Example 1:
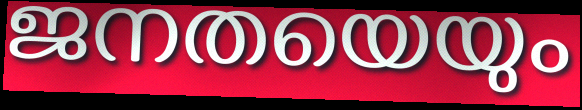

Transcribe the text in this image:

ജനതയെയും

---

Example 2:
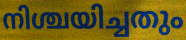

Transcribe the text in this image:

നിശ്ചയിച്ചതും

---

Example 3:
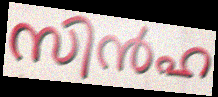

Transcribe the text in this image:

സിൻഹ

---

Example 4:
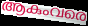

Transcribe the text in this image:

ആകുംവരെ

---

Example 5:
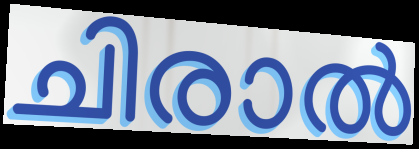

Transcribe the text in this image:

ചിരാൽ